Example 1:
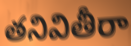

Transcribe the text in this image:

తనివితీరా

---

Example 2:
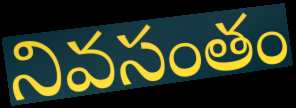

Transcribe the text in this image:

నివసంతం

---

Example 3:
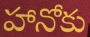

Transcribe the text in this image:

హానోకు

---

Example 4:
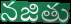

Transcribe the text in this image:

నజితు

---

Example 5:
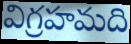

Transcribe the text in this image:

విగ్రహమది